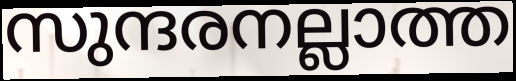
സുന്ദരനല്ലാത്ത